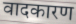
वादकारण